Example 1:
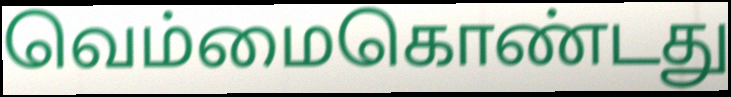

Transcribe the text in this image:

வெம்மைகொண்டது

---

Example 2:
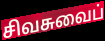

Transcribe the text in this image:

சிவசுவைப்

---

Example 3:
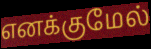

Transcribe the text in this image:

எனக்குமேல்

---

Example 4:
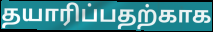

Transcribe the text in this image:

தயாரிப்பதற்காக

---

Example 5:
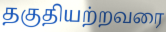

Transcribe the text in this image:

தகுதியற்றவரை